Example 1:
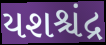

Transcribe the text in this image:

યશશ્ચંદ્ર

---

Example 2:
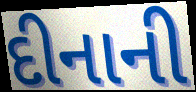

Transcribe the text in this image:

દીનાની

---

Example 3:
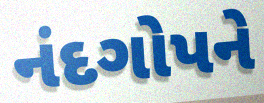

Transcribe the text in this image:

નંદગોપને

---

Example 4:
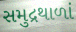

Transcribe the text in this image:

સમુદ્રથાળાં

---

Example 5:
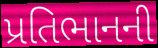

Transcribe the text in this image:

પ્રતિભાનની